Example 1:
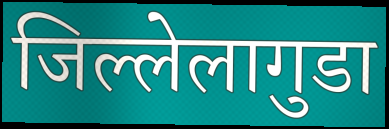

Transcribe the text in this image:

जिल्लेलागुडा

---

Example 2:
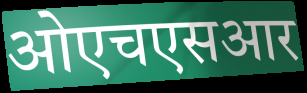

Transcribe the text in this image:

ओएचएसआर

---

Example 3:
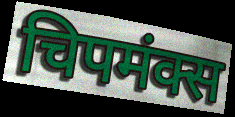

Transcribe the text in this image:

चिपमंक्स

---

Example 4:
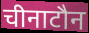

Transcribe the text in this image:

चीनाटौन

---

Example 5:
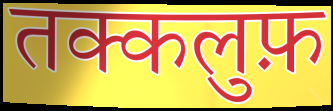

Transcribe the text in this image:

तक्कलुफ़